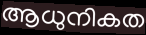
ആധുനികത